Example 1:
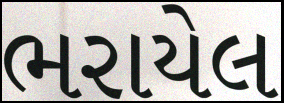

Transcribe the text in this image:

ભરાયેલ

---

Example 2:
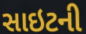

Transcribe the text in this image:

સાઇટની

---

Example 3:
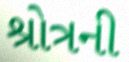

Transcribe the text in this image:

શ્રોત્રની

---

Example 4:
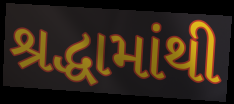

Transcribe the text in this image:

શ્રદ્ધામાંથી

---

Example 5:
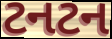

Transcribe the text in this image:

ટનટન